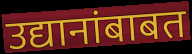
उद्यानांबाबत